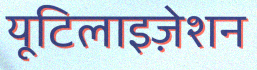
यूटिलाइज़ेशन